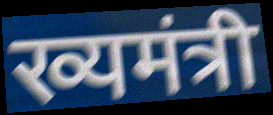
ख्यमंत्री